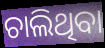
ଚାଲିଥିବା